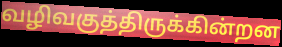
வழிவகுத்திருக்கின்றன